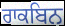
ਰਾਕਬਿਨ